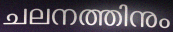
ചലനത്തിനും